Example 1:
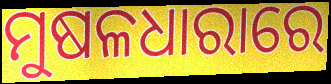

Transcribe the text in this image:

ମୁଷଳଧାରାରେ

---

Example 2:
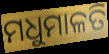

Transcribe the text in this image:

ମଧୁମାଳତି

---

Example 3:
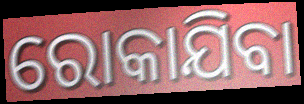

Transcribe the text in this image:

ରୋକାଯିବା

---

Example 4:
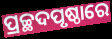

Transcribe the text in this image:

ପ୍ରଚ୍ଛଦପୃଷ୍ଠାରେ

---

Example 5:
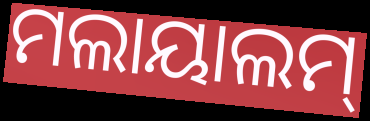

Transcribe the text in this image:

ମଲାୟାଲମ୍